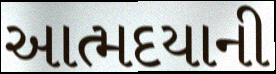
આત્મદયાની